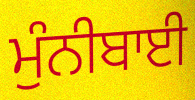
ਮੁੰਨੀਬਾਈ